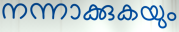
നന്നാക്കുകയും